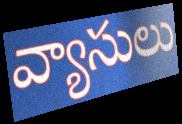
వ్యాసులు